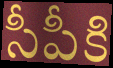
సీపీకి